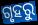
ଗୃହରୁ